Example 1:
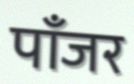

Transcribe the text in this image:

पाँजर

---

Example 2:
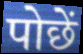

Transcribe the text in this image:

पोछें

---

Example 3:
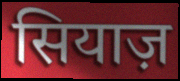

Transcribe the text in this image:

सियाज़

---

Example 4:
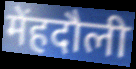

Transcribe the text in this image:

मेंहदौली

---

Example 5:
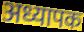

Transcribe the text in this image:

अध्यापक